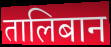
तालिबान